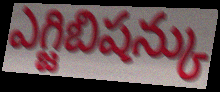
ఎగ్జిబిషన్కు